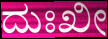
ದುಃಖೀ